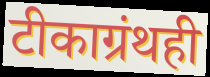
टीकाग्रंथही